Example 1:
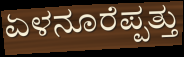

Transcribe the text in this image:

ಏಳನೂರೆಪ್ಪತ್ತು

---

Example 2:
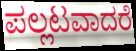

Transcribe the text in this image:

ಪಲ್ಲಟವಾದರೆ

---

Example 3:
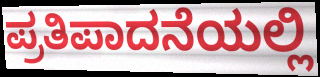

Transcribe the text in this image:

ಪ್ರತಿಪಾದನೆಯಲ್ಲಿ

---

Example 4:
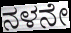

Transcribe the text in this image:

ನಳನೇ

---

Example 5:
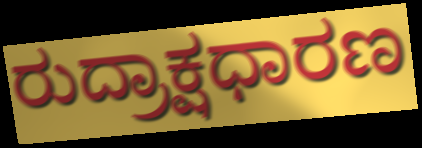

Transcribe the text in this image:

ರುದ್ರಾಕ್ಷಧಾರಣ